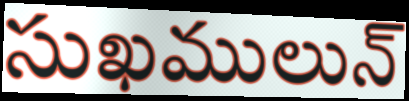
సుఖములున్